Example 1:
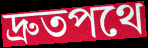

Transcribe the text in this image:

দ্রুতপথে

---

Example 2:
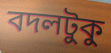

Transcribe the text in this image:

বদলটুকু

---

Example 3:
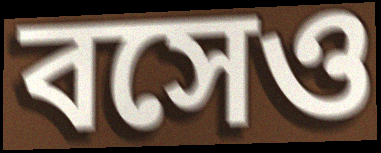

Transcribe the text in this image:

বসেও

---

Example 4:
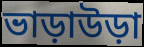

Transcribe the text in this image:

ভাড়াউড়া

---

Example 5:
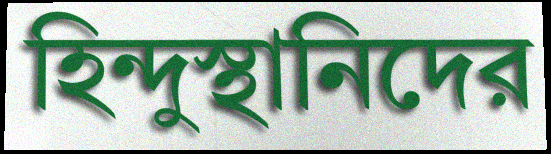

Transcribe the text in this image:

হিন্দুস্থানিদের